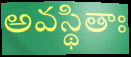
అవస్థితాః